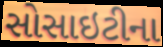
સોસાઇટીના